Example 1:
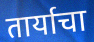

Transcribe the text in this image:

तार्याचा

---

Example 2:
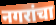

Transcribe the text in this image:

नगरांचा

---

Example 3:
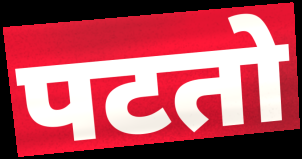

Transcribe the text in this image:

पटतो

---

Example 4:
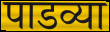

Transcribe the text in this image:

पाडव्या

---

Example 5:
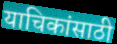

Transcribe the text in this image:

याचिकांसाठी